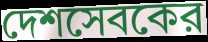
দেশসেবকের